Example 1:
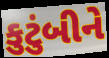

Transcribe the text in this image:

કુટુંબીને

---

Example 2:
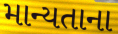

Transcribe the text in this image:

માન્યતાના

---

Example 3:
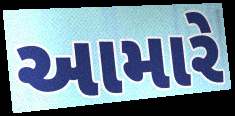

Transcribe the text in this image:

આમારે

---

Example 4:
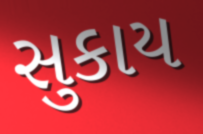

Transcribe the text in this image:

સુકાય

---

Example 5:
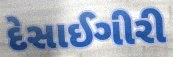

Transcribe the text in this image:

દેસાઈગીરી